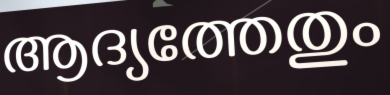
ആദ്യത്തേതും